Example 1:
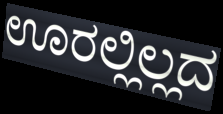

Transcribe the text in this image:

ಊರಲ್ಲಿಲ್ಲದ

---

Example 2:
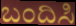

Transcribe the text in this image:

ಬಂದಿಸಿ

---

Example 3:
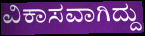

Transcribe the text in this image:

ವಿಕಾಸವಾಗಿದ್ದು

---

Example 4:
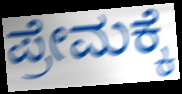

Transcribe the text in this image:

ಪ್ರೇಮಕ್ಕೆ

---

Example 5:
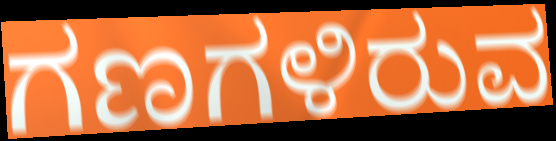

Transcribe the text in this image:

ಗಣಗಳಿರುವ